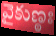
వైకుణ్ఠః